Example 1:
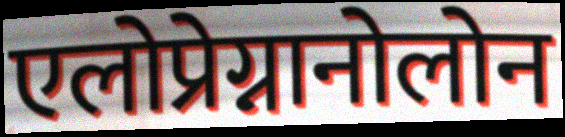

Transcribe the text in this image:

एलोप्रेग्नानोलोन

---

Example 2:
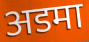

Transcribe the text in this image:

अडमा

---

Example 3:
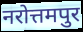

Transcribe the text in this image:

नरोत्तमपुर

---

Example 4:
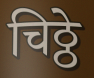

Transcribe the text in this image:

चिठ्ठे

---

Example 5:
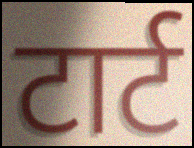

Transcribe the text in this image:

टार्ट